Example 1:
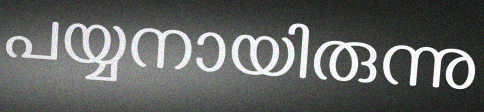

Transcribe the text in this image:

പയ്യനായിരുന്നു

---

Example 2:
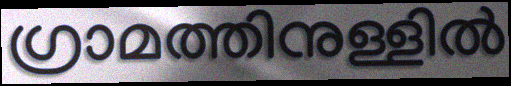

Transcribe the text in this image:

ഗ്രാമത്തിനുള്ളിൽ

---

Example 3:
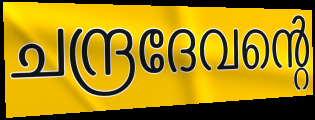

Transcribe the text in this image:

ചന്ദ്രദേവന്റെ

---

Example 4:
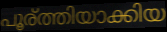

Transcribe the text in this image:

പൂര്ത്തിയാക്കിയ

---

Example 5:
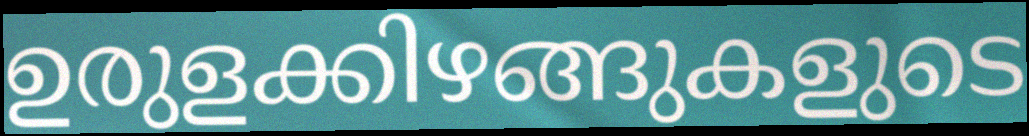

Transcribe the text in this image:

ഉരുളക്കിഴങ്ങുകളുടെ